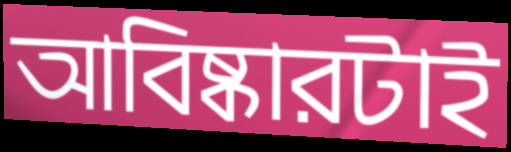
আবিষ্কারটাই